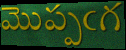
మొప్పఁగ